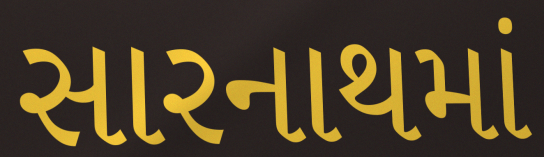
સારનાથમાં